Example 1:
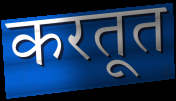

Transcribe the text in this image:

करतूत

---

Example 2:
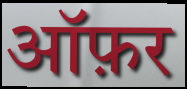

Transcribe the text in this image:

ऑफ़र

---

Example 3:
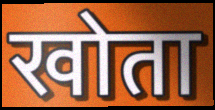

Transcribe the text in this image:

खोता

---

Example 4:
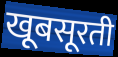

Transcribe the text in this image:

खूबसूरती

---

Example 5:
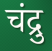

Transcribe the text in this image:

चंद्रु